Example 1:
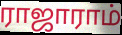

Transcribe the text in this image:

ராஜாராம்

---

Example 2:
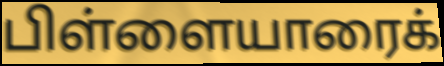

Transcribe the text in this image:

பிள்ளையாரைக்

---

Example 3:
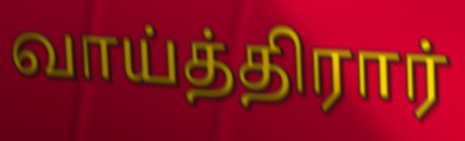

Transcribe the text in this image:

வாய்த்திரார்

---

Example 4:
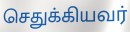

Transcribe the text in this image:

செதுக்கியவர்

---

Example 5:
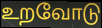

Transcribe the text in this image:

உறவோடு